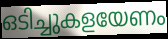
ഒടിച്ചുകളയേണം